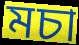
মচা